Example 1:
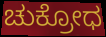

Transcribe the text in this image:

ಚುಕ್ರೋಧ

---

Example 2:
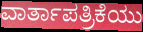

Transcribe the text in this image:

ವಾರ್ತಾಪತ್ರಿಕೆಯು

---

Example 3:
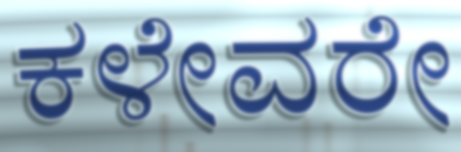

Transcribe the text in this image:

ಕಳೇವರೇ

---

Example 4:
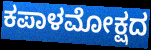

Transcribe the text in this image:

ಕಪಾಳಮೋಕ್ಷದ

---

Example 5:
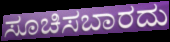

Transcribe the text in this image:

ಸೂಚಿಸಬಾರದು